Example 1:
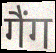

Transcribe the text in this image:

गैंग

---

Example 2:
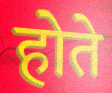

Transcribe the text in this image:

होते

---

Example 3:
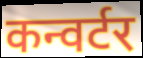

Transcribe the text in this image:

कन्वर्टर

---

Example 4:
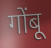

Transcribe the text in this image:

गोंबू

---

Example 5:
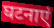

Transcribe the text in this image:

घटनाएं